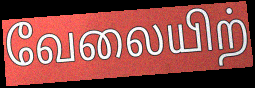
வேலையிற்